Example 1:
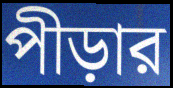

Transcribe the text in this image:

পীড়ার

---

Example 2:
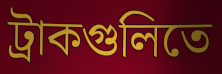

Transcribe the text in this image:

ট্রাকগুলিতে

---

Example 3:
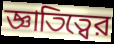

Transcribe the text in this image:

জ্ঞাতিত্বের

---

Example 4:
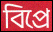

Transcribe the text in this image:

বিপ্রে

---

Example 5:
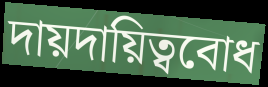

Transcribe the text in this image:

দায়দায়িত্ববোধ